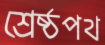
শ্রেষ্ঠপথ